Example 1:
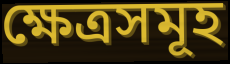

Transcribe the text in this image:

ক্ষেত্ৰসমূহ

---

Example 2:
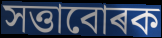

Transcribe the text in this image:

সত্তাবোৰক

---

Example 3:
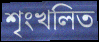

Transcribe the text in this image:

শৃংখলিত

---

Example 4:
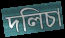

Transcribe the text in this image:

দলিচা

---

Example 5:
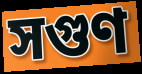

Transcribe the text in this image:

সগুণ